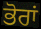
ਭੋਰਾਂ